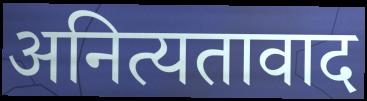
अनित्यतावाद